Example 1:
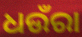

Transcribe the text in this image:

ଧଉଁରା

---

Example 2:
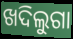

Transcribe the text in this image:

ଖଦିଲୁଗା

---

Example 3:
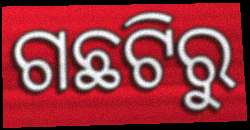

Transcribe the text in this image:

ଗଛଟିରୁ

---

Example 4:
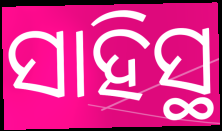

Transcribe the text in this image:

ସାହିସ୍ଥ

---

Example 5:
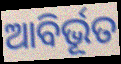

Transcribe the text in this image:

ଆବିର୍ଭୂତ